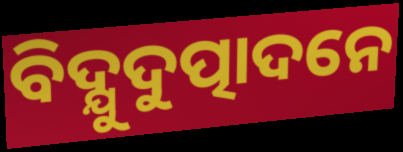
ବିଦ୍ଯୁଦୁତ୍ପାଦନେ